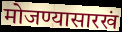
मोजण्यासारखं